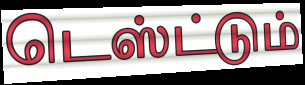
டெஸ்ட்டும்